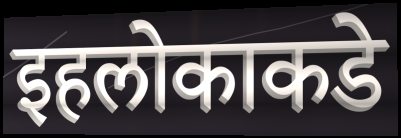
इहलोकाकडे